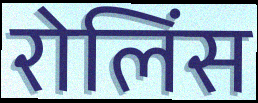
रोलिंस